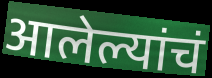
आलेल्यांचं